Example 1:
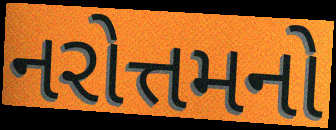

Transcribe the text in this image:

નરોત્તમનો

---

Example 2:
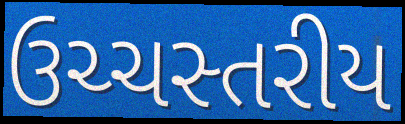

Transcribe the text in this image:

ઉચ્ચસ્તરીય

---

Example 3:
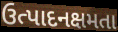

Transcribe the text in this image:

ઉત્પાદનક્ષમતા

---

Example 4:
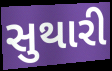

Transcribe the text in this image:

સુથારી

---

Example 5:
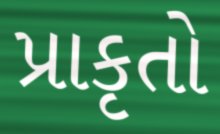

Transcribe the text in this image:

પ્રાકૃતો